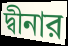
দ্বীনার